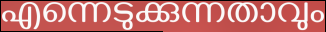
എന്നെടുക്കുന്നതാവും